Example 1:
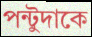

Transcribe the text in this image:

পন্টুদাকে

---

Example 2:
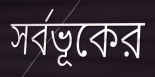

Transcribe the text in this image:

সর্বভূকের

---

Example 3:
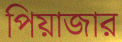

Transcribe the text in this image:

পিয়াজার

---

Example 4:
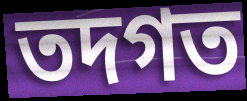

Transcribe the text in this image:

তদগত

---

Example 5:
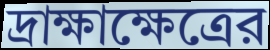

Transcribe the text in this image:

দ্রাক্ষাক্ষেত্রের